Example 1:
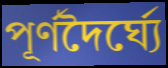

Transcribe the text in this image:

পূর্ণদৈর্ঘ্যে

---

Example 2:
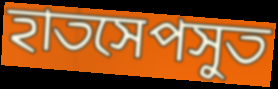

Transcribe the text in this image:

হাতসেপসুত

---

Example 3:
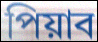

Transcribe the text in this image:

পিয়াব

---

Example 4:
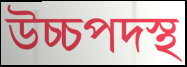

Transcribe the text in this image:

উচ্চপদস্থ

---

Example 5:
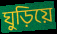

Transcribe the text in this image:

ঘুড়িয়ে